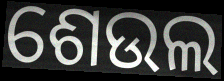
ଶେଉଲ